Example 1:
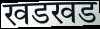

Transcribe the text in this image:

खडखड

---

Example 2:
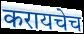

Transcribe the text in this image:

करायचेच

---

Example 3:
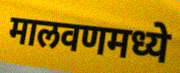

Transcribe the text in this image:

मालवणमध्ये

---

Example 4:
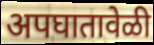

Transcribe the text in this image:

अपघातावेळी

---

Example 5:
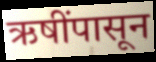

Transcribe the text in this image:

ऋषींपासून